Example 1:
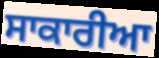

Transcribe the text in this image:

ਸਾਕਾਰੀਆ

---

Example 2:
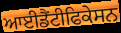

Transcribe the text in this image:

ਆਈਡੈਂਟੀਫਿਕੇਸਨ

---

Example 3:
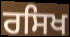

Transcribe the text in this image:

ਰਸਿਖ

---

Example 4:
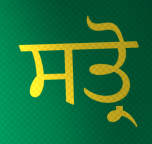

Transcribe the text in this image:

ਸਤ੍ਰੋ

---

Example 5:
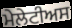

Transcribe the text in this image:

ਮੇਲੇਟੀਅਸ